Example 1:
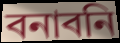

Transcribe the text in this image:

বনাবনি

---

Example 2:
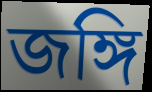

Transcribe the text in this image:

জঙ্গি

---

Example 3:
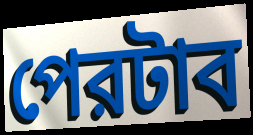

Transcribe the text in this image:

পেরটাব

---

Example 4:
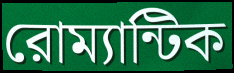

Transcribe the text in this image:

রোম্যান্টিক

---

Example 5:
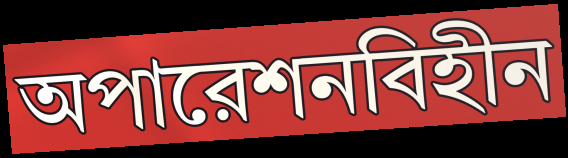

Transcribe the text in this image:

অপারেশনবিহীন